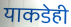
याकडेही